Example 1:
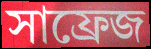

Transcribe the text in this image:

সাফ্রেজ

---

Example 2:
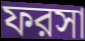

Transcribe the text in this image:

ফরসা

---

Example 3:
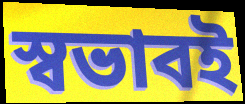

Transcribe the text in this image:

স্বভাবই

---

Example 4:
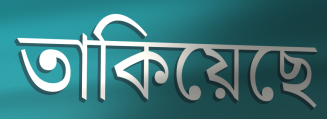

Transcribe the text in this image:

তাকিয়েছে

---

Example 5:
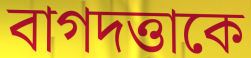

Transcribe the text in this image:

বাগদত্তাকে